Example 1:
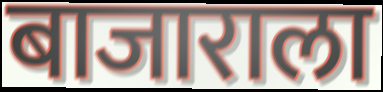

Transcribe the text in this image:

बाजाराला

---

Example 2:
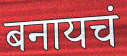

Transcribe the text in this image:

बनायचं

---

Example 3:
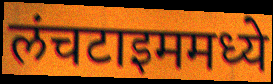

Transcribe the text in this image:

लंचटाइममध्ये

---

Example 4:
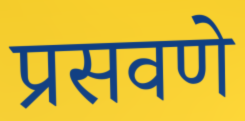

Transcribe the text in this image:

प्रसवणे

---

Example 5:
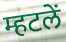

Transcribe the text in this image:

म्हटलें